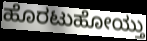
ಹೊರಟುಹೋಯ್ತು